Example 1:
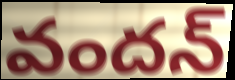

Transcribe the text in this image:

వందన్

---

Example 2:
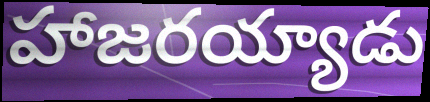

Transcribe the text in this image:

హాజరయ్యాడు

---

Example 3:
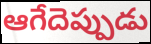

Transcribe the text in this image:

ఆగేదెప్పుడు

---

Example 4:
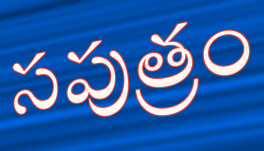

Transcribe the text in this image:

సపుత్రం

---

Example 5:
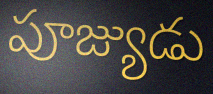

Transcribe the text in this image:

పూజ్యుడు